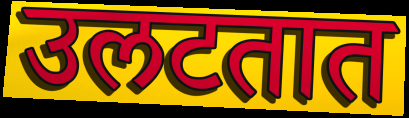
उलटतात